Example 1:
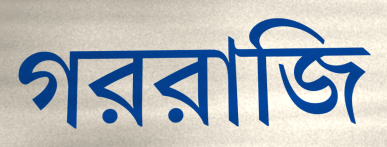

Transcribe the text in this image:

গররাজি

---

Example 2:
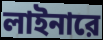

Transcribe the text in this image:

লাইনারে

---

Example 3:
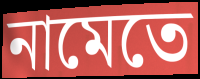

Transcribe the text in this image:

নামেতে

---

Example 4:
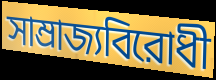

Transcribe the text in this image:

সাম্রাজ্যবিরোধী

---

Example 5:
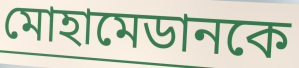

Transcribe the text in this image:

মোহামেডানকে